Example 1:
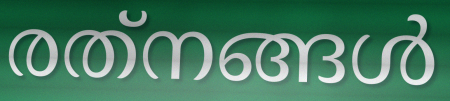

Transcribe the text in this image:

രത്‌നങ്ങൾ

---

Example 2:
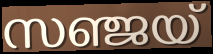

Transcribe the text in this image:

സഞ്ജയ്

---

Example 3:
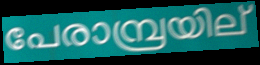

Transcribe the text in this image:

പേരാമ്പ്രയില്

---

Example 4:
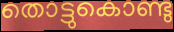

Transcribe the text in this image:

തൊട്ടുകൊണ്ടു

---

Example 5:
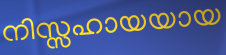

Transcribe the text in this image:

നിസ്സഹായയായ